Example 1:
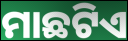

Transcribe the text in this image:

ମାଛଟିଏ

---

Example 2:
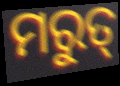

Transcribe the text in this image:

ମରୁତ୍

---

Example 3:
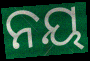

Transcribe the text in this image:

ନୟ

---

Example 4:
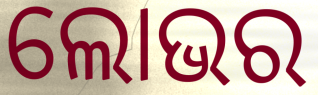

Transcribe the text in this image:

ଲୋଭର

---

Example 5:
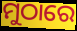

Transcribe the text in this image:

ମୁଠାରେ